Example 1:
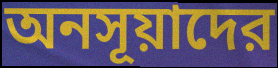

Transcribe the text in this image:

অনসূয়াদের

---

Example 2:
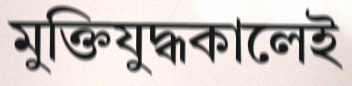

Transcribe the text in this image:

মুক্তিযুদ্ধকালেই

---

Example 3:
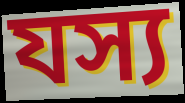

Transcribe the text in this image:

যস্য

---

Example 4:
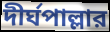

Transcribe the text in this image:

দীর্ঘপাল্লার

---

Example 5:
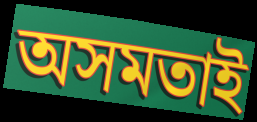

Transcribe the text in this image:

অসমতাই